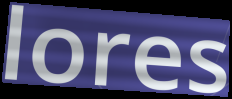
lores